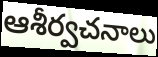
ఆశీర్వచనాలు